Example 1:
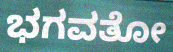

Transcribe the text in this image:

ಭಗವತೋ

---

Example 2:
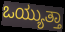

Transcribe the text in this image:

ಒಯ್ಯುತ್ತಾ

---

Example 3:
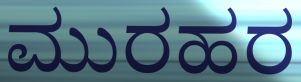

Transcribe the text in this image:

ಮುರಹರ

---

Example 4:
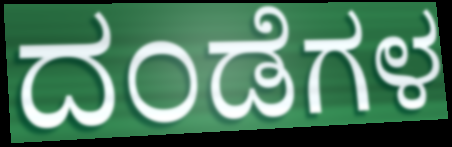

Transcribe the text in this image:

ದಂಡೆಗಳ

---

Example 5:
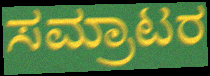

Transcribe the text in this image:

ಸಮ್ರಾಟರ